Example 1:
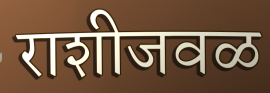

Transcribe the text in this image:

राशीजवळ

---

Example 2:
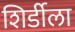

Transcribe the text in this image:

शिर्डीला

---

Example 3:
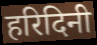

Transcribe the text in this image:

हरिदिनी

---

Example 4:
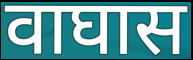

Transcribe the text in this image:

वाघास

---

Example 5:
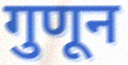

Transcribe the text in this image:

गुणून